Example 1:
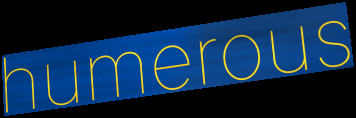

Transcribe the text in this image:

humerous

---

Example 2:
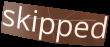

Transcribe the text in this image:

skipped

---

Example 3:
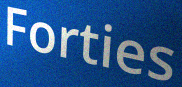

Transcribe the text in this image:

Forties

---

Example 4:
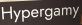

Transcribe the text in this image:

Hypergamy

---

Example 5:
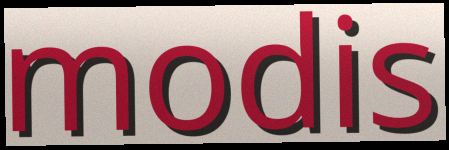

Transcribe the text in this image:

modis